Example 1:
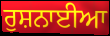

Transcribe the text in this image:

ਰੁਸ਼ਨਾਈਆ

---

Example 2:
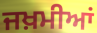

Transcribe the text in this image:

ਜਖ਼ਮੀਆਂ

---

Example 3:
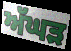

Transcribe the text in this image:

ਅੱਘੜ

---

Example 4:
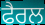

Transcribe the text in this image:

ਫੈਰਲ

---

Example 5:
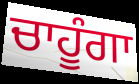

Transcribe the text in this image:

ਚਾਹੂੰਗਾ